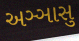
અઞ્ઞાસુ